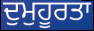
ਦੁਮੁਹੂਰਤਾ